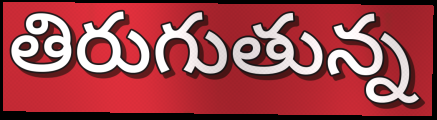
తిరుగుతున్న